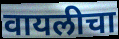
वायलीचा